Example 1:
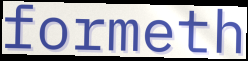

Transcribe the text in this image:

formeth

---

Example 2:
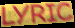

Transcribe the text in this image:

LYRIC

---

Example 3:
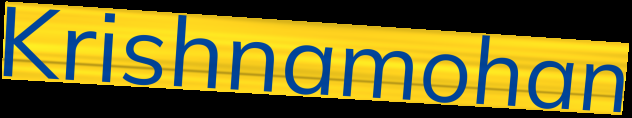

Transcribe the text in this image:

Krishnamohan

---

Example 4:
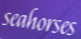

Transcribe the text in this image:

seahorses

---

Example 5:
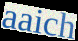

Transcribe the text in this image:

aaich